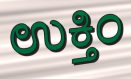
ಉಕ್ತಿಂ